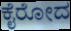
ಕೈರೋದ